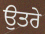
ਉਤਰੇ